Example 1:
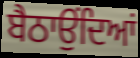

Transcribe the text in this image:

ਬੈਠਾਉਂਦਿਆਂ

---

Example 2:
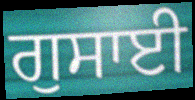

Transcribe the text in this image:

ਗੁਸਾਈ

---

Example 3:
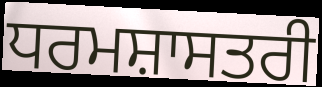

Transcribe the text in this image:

ਧਰਮਸ਼ਾਸਤਰੀ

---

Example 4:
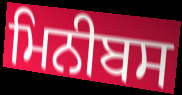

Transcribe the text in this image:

ਮਿਨੀਬਸ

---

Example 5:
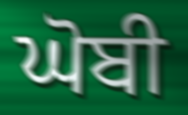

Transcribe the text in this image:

ਘੋਬੀ